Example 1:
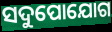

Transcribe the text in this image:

ସଦୁପୋଯୋଗ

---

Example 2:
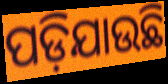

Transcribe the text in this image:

ପଡ଼ିଯାଉଛି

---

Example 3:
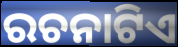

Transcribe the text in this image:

ରଚନାଟିଏ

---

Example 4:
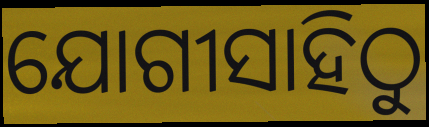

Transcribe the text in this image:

ଯୋଗୀସାହିଠୁ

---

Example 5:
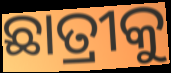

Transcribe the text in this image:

ଛାତ୍ରୀକୁ